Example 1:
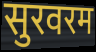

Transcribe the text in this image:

सुरवरम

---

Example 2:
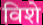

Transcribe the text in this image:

विशे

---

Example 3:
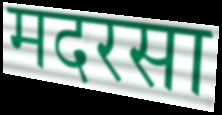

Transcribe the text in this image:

मदरसा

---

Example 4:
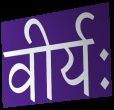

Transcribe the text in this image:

वीर्यः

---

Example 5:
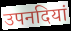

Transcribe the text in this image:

उपनदियां